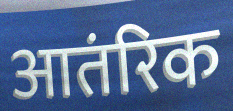
आतंरिक